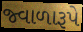
જ્વાળારૂપે